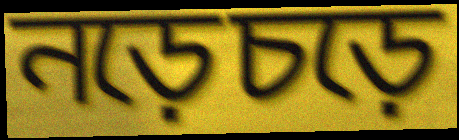
নড়েচড়ে